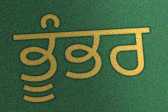
ਭੂੰਭਰ